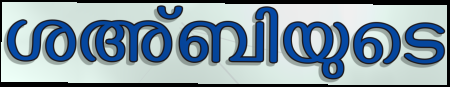
ശഅ്ബിയുടെ